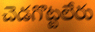
చెడగొట్టలేరు